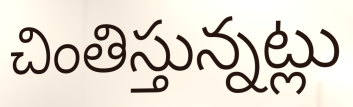
చింతిస్తున్నట్లు